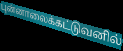
புன்னாலைக்கட்டுவனில்